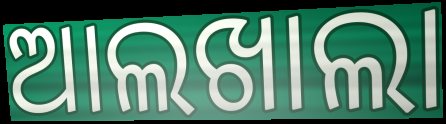
ଆଲଖାଲା